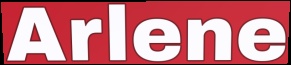
Arlene